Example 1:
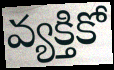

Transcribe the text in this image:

వ్యక్తికో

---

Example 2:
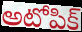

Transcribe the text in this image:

అటోపిక్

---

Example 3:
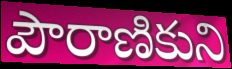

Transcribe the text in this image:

పౌరాణికుని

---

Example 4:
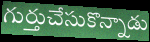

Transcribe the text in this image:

గుర్తుచేసుకొన్నాడు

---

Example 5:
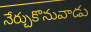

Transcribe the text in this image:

నేర్చుకొనువాడు